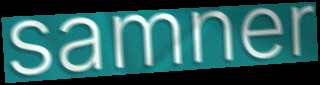
samner